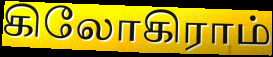
கிலோகிராம்